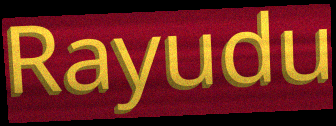
Rayudu